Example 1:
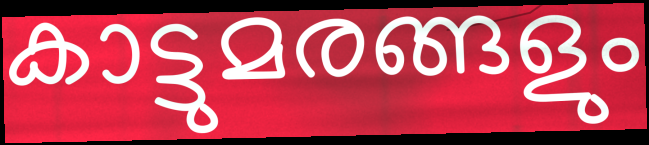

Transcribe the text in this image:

കാട്ടുമരങ്ങളും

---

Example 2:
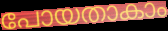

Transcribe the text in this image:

പോയതാകാം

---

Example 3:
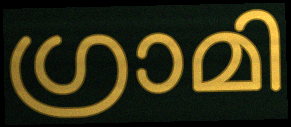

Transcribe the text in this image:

ഗ്രാമി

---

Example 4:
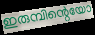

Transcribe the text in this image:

ഇരുമ്പിന്റെയോ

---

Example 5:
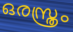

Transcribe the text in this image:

ഒരസ്ത്രം